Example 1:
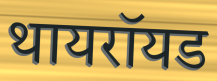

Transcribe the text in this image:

थायरॉयड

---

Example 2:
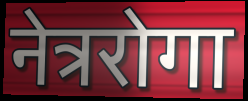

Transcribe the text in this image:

नेत्ररोगा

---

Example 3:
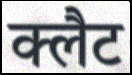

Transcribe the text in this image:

क्लैट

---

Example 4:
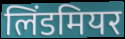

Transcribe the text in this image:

लिंडमियर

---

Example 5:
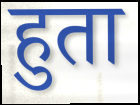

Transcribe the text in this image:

हुता